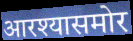
आरश्यासमोर